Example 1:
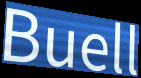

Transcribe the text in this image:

Buell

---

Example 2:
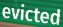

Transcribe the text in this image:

evicted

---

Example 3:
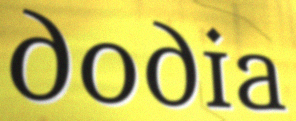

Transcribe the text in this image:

dodia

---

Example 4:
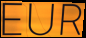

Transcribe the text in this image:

EUR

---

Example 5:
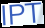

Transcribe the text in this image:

IPT